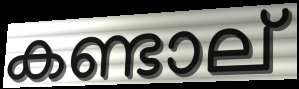
കണ്ടാല്